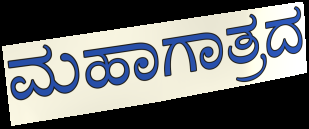
ಮಹಾಗಾತ್ರದ